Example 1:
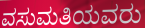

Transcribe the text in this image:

ವಸುಮತಿಯವರು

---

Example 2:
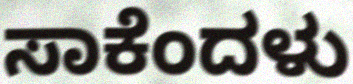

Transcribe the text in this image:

ಸಾಕೆಂದಳು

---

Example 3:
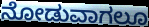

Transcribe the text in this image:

ನೋಡುವಾಗಲೂ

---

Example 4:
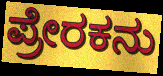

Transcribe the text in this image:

ಪ್ರೇರಕನು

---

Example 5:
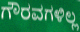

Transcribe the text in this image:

ಗೌರವಗಳಿಲ್ಲ